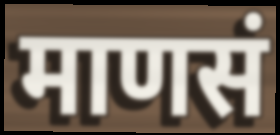
माणसं